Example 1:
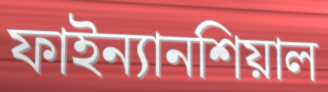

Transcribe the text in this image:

ফাইন্যানশিয়াল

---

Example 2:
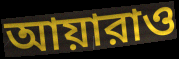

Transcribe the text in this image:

আয়ারাও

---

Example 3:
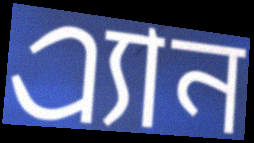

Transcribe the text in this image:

এ্যান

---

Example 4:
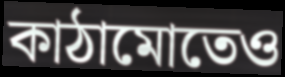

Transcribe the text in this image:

কাঠামোতেও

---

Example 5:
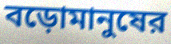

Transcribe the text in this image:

বড়োমানুষের